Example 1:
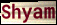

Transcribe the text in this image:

Shyam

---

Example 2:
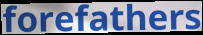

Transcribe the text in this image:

forefathers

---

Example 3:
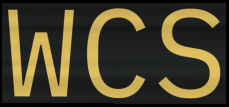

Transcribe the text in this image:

WCS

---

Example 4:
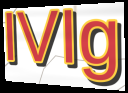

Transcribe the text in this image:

IVIg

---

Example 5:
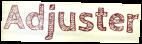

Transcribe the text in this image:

Adjuster